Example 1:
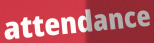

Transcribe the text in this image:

attendance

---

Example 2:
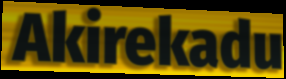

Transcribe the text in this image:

Akirekadu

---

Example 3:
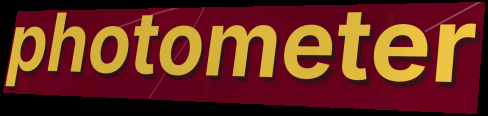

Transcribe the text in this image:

photometer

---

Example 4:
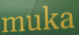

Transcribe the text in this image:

muka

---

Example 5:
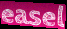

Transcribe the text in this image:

easel